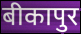
बीकापुर